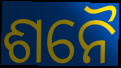
ଶନୈ